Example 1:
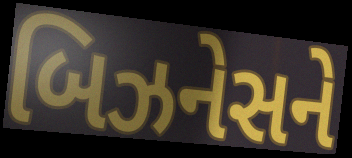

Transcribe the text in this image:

બિઝનેસને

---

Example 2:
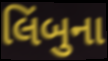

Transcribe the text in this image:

લિંબુના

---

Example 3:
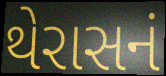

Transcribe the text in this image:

થેરાસનં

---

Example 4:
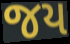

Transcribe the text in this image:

જય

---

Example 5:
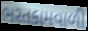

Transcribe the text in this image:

ભરતકામવાળી